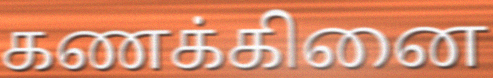
கணக்கினை